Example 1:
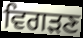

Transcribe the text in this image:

ਵਿਗੜਣ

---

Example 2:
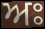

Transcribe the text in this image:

ਅਃ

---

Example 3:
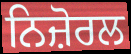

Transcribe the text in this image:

ਨਿਜ਼ੋਰਲ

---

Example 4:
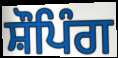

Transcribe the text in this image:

ਸ਼ੌਪਿੰਗ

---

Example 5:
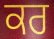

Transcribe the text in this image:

ਕਰ